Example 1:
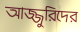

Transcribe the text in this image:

আজ্জুরিদের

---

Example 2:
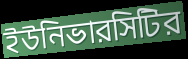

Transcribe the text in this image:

ইউনিভারসিটির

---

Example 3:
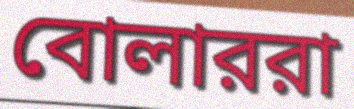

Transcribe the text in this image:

বোলাররা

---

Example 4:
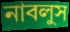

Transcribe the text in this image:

নাবলুস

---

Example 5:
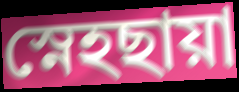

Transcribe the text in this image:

স্নেহছায়া